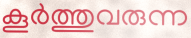
കൂർത്തുവരുന്ന